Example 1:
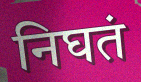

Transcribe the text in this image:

निघतं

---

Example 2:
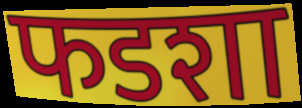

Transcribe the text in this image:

फडशा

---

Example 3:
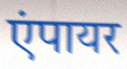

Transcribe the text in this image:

एंपायर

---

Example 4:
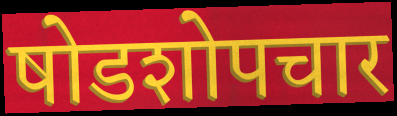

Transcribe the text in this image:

षोडशोपचार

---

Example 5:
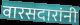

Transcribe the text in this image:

वारसदारांनी